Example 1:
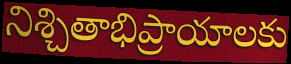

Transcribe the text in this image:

నిశ్చితాభిప్రాయాలకు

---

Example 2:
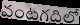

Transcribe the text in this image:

వంటగదిలో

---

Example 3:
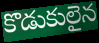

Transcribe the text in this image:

కొడుకులైన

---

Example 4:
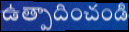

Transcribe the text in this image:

ఉత్పాదించండి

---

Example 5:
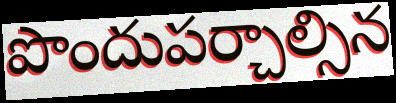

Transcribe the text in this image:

పొందుపర్చాల్సిన